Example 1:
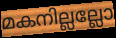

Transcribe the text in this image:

മകനില്ലല്ലോ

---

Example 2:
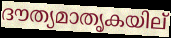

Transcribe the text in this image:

ദൗത്യമാതൃകയില്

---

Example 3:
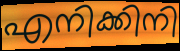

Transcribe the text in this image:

എനിക്കിനി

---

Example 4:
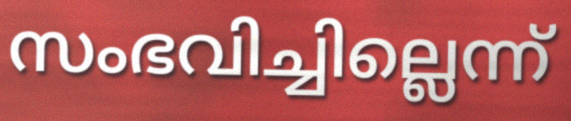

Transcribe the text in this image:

സംഭവിച്ചില്ലെന്ന്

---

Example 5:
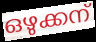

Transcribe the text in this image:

ഒഴുക്കന്